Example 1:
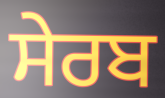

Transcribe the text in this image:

ਸੇਰਬ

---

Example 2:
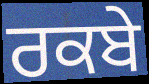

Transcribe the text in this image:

ਰਕਬੇ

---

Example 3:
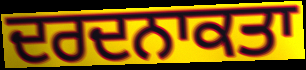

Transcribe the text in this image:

ਦਰਦਨਾਕਤਾ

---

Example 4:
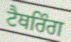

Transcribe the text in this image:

ਟੈਥਰਿੰਗ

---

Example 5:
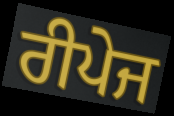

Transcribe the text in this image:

ਰੀਪੇਜ